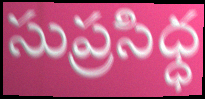
సుప్రసిధ్ధ